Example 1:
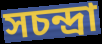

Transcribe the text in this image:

সচন্দ্রা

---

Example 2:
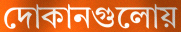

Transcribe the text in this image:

দোকানগুলোয়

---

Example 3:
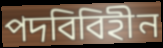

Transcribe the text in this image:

পদবিবিহীন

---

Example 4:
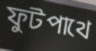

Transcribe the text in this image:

ফুটপাথে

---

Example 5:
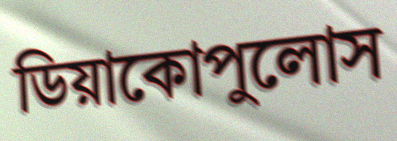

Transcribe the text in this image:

ডিয়াকোপুলোস